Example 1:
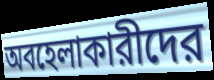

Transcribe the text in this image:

অবহেলাকারীদের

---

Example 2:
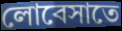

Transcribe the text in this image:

লোবেসাতে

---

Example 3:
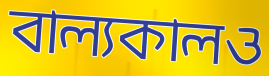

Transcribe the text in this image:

বাল্যকালও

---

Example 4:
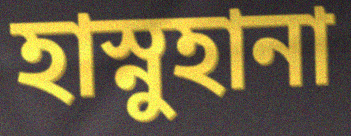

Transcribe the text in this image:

হাস্নুহানা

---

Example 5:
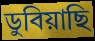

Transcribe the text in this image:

ডুবিয়াছি